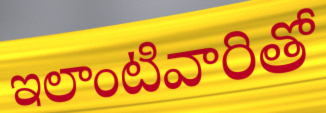
ఇలాంటివారితో